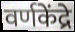
वर्णकेंद्रे